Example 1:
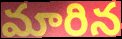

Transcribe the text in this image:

మారిన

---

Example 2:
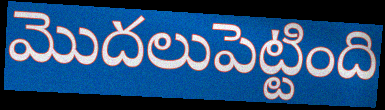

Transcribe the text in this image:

మొదలుపెట్టింది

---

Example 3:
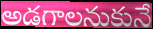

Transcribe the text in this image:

అడగాలనుకునే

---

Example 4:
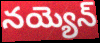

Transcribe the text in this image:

నయ్యెన్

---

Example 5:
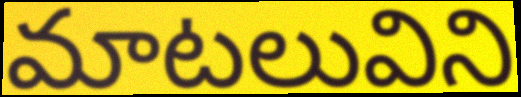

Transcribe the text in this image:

మాటలువిని